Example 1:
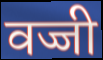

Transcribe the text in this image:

वज्जी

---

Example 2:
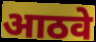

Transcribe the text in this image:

आठवे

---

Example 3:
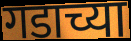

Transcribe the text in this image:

गडाच्या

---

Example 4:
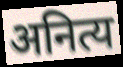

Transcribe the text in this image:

अनित्य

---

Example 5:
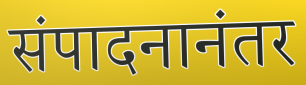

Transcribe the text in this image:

संपादनानंतर